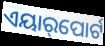
ଏୟାର୍‌ପୋର୍ଟ